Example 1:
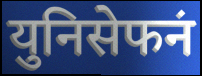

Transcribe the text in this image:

युनिसेफनं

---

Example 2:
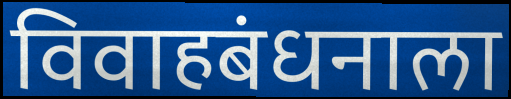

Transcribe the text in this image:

विवाहबंधनाला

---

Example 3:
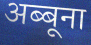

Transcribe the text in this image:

अब्बूना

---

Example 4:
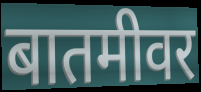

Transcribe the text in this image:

बातमीवर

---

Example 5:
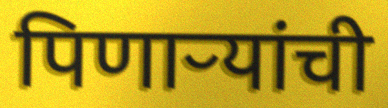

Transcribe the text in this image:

पिणाऱ्यांची